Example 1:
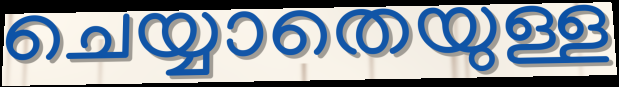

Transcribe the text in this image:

ചെയ്യാതെയുള്ള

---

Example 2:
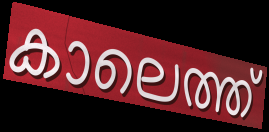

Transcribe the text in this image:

കാലെത്ത്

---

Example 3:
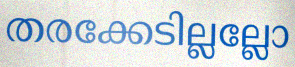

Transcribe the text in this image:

തരക്കേടില്ലല്ലോ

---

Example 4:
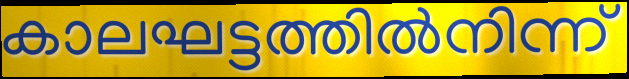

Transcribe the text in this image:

കാലഘട്ടത്തിൽനിന്ന്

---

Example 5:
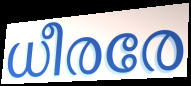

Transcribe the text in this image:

ധീരരേ